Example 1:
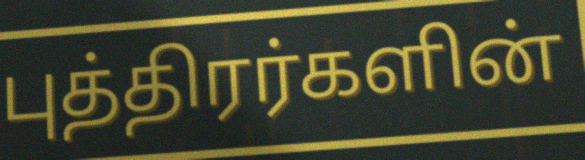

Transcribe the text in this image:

புத்திரர்களின்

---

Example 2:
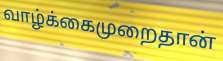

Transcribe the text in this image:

வாழ்க்கைமுறைதான்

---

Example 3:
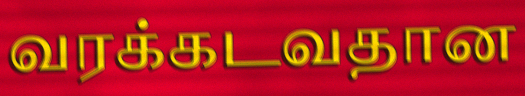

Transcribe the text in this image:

வரக்கடவதான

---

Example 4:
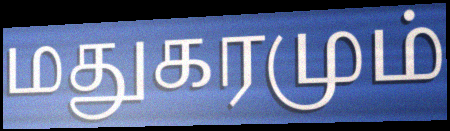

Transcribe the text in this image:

மதுகரமும்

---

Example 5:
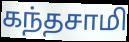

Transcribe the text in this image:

கந்தசாமி